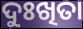
ଦୁଃଖିତା